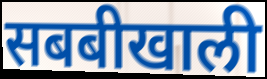
सबबीखाली